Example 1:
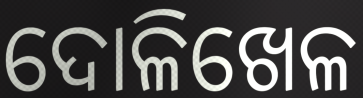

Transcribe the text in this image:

ଦୋଳିଖେଳ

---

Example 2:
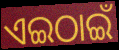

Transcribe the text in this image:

ଏଇଠାଇଁ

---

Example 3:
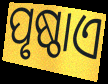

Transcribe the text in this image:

ପୃଷ୍ଠାଏ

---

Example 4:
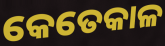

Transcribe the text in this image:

କେତେକାଳ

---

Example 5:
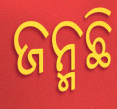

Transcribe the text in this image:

ଜନ୍ମଛି